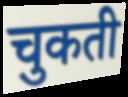
चुकती